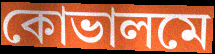
কোভালমে